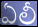
ఏలీ